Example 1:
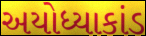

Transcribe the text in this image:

અયોધ્યાકાંડ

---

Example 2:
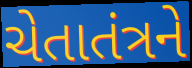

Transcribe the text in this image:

ચેતાતંત્રને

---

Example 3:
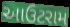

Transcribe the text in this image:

આઉટરામ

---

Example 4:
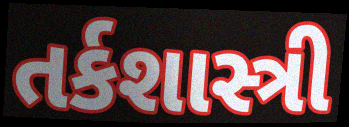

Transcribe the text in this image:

તર્કશાસ્ત્રી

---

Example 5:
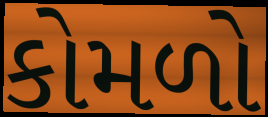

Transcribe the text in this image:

કોમળો